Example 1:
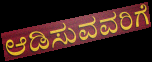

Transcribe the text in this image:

ಆಡಿಸುವವರಿಗೆ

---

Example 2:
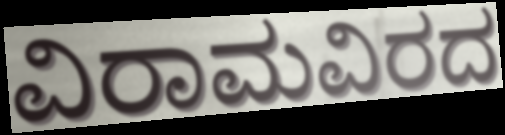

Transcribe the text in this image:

ವಿರಾಮವಿರದ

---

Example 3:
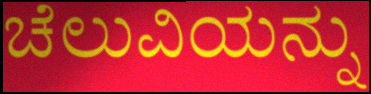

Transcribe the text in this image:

ಚೆಲುವಿಯನ್ನು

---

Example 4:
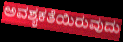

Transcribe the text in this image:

ಅವಶ್ಯಕತೆಯಿರುವುದು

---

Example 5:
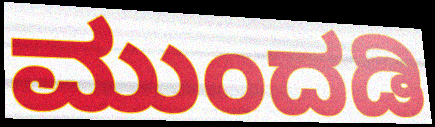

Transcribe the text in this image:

ಮುಂದಡಿ